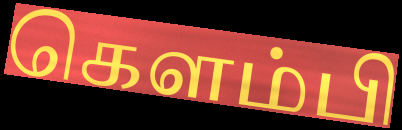
கெளம்பி